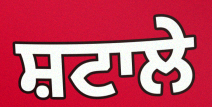
ਸ਼ਟਾਲੇ